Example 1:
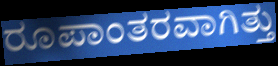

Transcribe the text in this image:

ರೂಪಾಂತರವಾಗಿತ್ತು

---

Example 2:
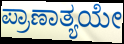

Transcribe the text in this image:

ಪ್ರಾಣಾತ್ಯಯೇ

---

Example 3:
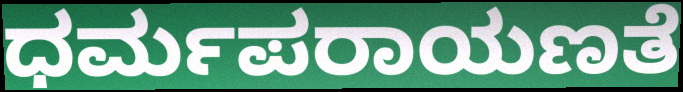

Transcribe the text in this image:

ಧರ್ಮಪರಾಯಣತೆ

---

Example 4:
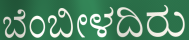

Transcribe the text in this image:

ಬೆಂಬೀಳದಿರು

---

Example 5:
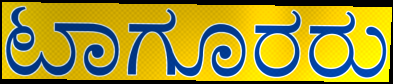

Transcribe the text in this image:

ಟಾಗೂರರು